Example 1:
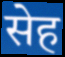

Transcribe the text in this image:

सेह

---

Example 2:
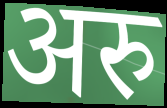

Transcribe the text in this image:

अरु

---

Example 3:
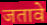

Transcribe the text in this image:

जतावे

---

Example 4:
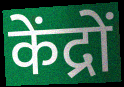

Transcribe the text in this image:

केंद्रों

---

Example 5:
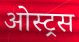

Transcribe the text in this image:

ओस्ट्रस